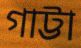
গাট্টা